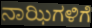
ನಾಝಿಗಳಿಗೆ